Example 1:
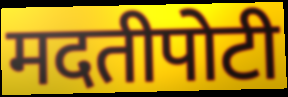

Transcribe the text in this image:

मदतीपोटी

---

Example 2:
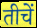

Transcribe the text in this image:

तीचें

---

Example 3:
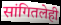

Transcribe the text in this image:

सांगितलेही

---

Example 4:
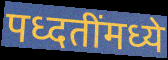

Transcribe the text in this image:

पध्दतींमध्ये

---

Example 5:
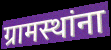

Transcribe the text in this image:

ग्रामस्थांना